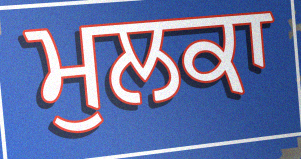
ਮੁਲਕਾ